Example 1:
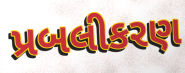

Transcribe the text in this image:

પ્રબલીકરણ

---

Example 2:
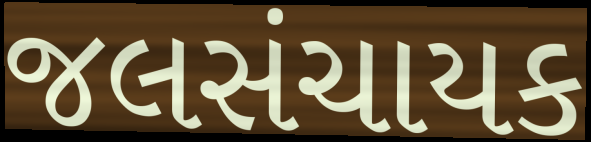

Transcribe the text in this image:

જલસંચાયક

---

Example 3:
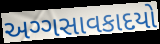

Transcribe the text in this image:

અગ્ગસાવકાદયો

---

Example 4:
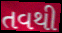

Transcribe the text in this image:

તવથી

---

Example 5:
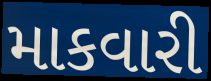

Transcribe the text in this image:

માકવારી